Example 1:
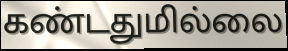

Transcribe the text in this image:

கண்டதுமில்லை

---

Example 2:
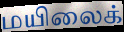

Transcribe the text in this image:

மயிலைக்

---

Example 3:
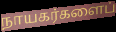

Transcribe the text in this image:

நாயகர்களைப்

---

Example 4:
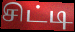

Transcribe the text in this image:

சிட்டி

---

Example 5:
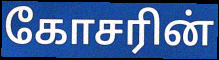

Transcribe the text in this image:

கோசரின்